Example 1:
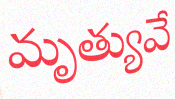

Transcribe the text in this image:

మృత్యువే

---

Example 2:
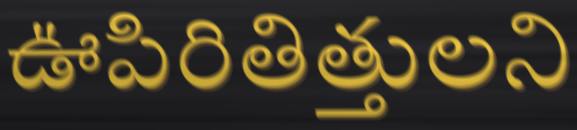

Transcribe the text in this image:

ఊపిరితిత్తులని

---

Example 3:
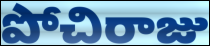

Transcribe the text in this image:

పోచిరాజు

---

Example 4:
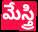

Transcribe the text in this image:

మేస్త్రి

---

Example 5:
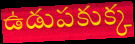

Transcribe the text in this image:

ఉడుపకుక్క